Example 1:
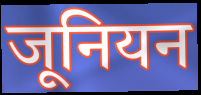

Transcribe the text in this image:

जूनियन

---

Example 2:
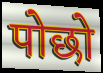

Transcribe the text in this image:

पोछो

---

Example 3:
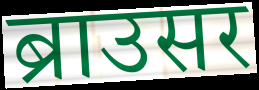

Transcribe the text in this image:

ब्राउसर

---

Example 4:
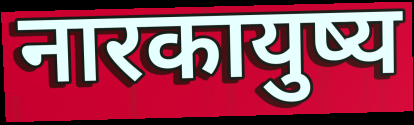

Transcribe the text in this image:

नारकायुष्य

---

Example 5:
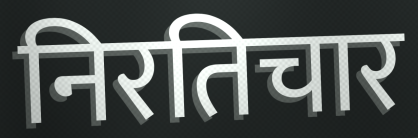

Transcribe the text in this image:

निरतिचार